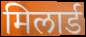
मिलार्ड